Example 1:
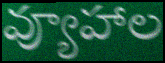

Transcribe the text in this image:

వ్యూహాల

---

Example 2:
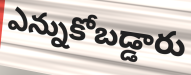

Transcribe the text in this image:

ఎన్నుకోబడ్డారు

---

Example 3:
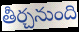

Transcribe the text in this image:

తీర్చనుంది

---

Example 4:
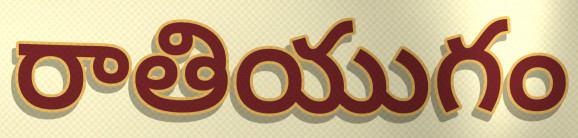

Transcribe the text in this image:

రాతియుగం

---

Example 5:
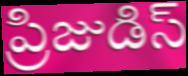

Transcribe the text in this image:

ప్రిజుడిస్